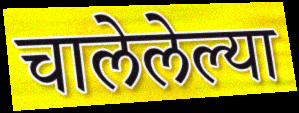
चालेलेल्या